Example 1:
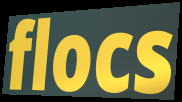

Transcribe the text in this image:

flocs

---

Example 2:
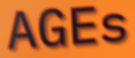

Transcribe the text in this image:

AGEs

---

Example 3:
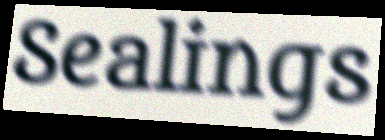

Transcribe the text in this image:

Sealings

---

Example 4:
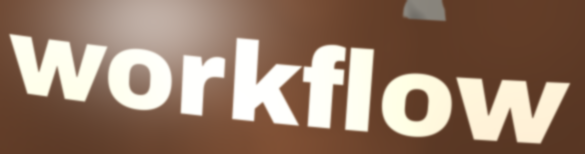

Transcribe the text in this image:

workflow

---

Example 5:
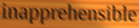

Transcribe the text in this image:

inapprehensible